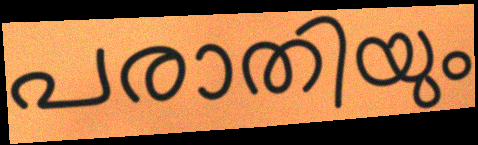
പരാതിയും